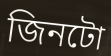
জিনটো